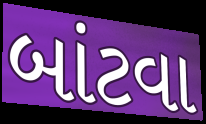
બાંટવા